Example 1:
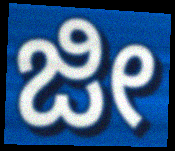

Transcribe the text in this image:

ಜೀ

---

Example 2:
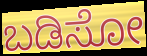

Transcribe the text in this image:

ಬಡಿಸೋ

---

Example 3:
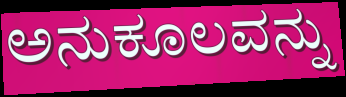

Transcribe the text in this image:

ಅನುಕೂಲವನ್ನು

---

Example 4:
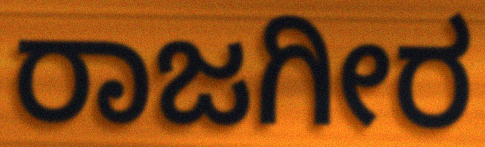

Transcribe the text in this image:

ರಾಜಗೀರ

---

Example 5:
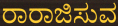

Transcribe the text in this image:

ರಾರಾಜಿಸುವ